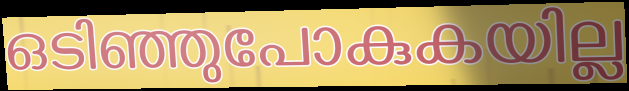
ഒടിഞ്ഞുപോകുകയില്ല